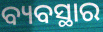
ବ୍ୟବସ୍ଥାର